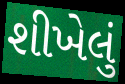
શીખેલું